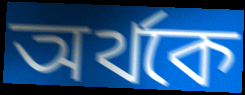
অৰ্থকে